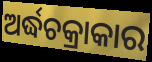
ଅର୍ଦ୍ଧଚକ୍ରାକାର